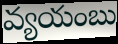
వ్యయంబు